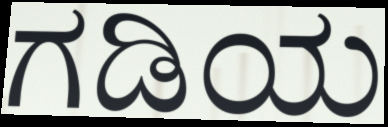
ಗಡಿಯ